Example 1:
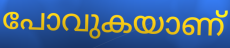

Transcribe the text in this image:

പോവുകയാണ്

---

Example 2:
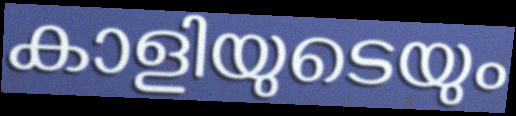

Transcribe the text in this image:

കാളിയുടെയും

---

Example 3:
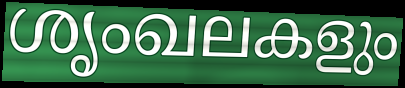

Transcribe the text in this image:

ശൃംഖലകളും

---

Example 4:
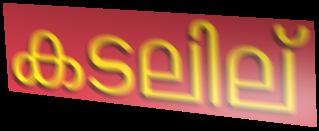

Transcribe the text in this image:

കടലില്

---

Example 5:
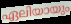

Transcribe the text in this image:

ഏലിയായും